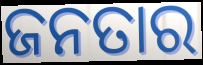
ଜନତାର